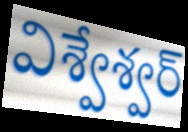
విశ్వేశ్వర్